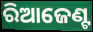
ରିଆଜେଣ୍ଟ